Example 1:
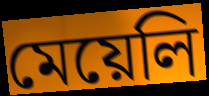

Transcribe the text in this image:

মেয়েলি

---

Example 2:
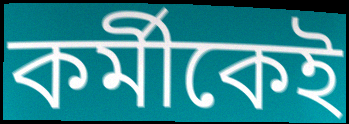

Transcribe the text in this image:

কর্মীকেই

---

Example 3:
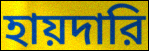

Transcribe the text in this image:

হায়দারি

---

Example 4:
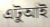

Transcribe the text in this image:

এটুআই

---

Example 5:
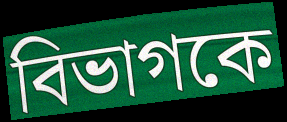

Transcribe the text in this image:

বিভাগকে